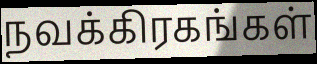
நவக்கிரகங்கள்